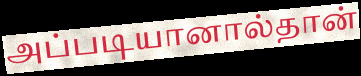
அப்படியானால்தான்